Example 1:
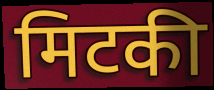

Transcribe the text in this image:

मिटकी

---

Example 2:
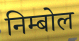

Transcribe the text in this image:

निम्बोल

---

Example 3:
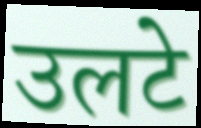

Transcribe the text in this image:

उलटे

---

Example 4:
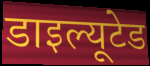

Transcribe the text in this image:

डाइल्यूटेड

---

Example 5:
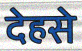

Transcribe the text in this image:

देहसे